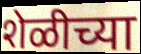
शेळीच्या